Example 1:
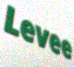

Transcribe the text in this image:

Levee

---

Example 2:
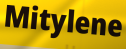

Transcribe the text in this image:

Mitylene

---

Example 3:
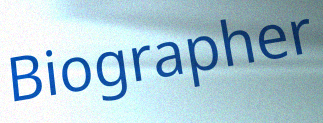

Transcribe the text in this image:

Biographer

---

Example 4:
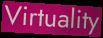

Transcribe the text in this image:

Virtuality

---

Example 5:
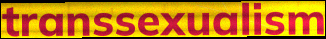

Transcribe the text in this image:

transsexualism